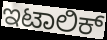
ಇಟಾಲಿಕ್